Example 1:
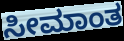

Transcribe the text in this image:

ಸೀಮಾಂತ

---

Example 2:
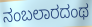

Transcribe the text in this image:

ನಂಬಲಾರದಂಥ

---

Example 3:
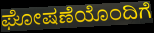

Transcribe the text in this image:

ಘೋಷಣೆಯೊಂದಿಗೆ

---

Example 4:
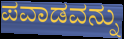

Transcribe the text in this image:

ಪವಾಡವನ್ನು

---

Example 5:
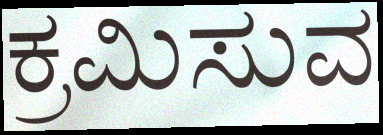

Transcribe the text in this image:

ಕ್ರಮಿಸುವ